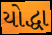
યોદ્ધા